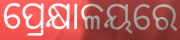
ପ୍ରେକ୍ଷାଳୟରେ